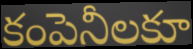
కంపెనీలకూ